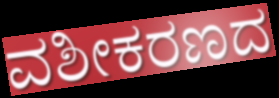
ವಶೀಕರಣದ